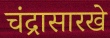
चंद्रासारखे